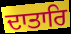
ਦਾਤਾਰਿ